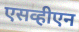
एसव्हीएन